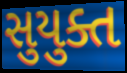
સુયુક્ત